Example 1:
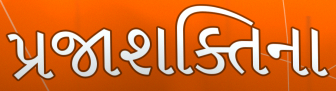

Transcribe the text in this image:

પ્રજાશક્તિના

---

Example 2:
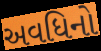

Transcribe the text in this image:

અવધિનો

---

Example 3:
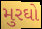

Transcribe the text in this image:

મુરઘો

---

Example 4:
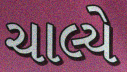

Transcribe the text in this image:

ચાલ્યે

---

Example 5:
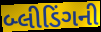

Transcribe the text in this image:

બ્લીડિંગની